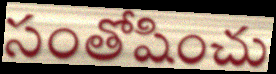
సంతోషించు